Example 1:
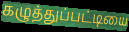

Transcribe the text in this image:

கழுத்துப்பட்டியை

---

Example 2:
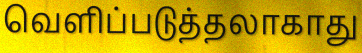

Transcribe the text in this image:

வெளிப்படுத்தலாகாது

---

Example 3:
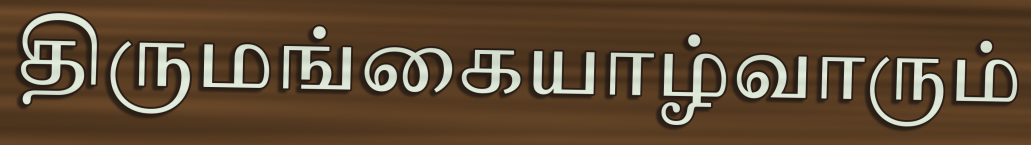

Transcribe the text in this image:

திருமங்கையாழ்வாரும்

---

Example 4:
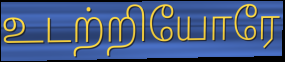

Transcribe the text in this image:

உடற்றியோரே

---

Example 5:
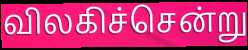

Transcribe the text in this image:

விலகிச்சென்று